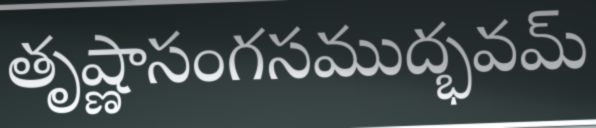
తృష్ణాసంగసముద్భవమ్